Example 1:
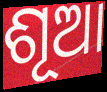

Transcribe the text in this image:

ଶୂଆ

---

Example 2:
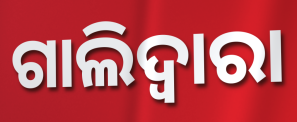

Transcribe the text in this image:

ଗାଲିଦ୍ଵାରା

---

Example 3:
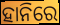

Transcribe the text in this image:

ହାନିରେ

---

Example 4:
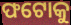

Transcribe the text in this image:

ଫଟୋକୁ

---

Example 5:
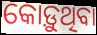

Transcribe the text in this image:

କୋଡ଼ୁଥିବା